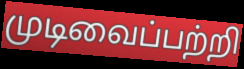
முடிவைப்பற்றி